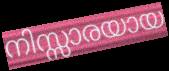
നിസ്സാരയായ